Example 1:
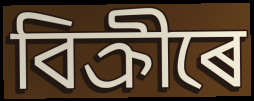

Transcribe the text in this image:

বিক্ৰীৰে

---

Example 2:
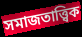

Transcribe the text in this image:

সমাজতাত্ত্বিক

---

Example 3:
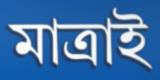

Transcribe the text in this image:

মাত্ৰাই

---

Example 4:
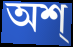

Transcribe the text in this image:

অশ্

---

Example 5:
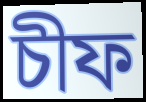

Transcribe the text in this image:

চীফ